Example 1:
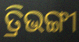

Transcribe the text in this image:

ତ୍ରିଭଙ୍ଗୀ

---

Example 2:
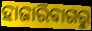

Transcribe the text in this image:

ହାଜାରିବାଗରୁ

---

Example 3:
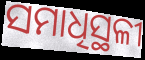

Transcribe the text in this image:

ସମାଧିସ୍ଥଳୀ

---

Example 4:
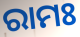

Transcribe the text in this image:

ରାମଃ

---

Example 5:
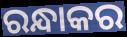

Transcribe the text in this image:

ରନ୍ଧାକର